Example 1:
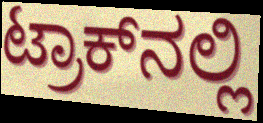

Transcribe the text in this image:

ಟ್ರಾಕ್‌ನಲ್ಲಿ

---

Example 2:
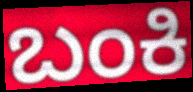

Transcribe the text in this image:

ಬಂಕಿ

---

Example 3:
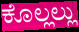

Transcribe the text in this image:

ಕೊಲ್ಲಲ್ಲು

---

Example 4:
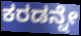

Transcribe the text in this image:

ಕರಡನ್ನೇ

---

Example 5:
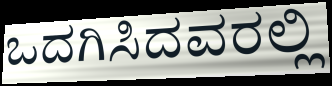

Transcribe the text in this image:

ಒದಗಿಸಿದವರಲ್ಲಿ